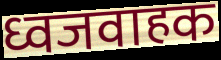
ध्वजवाहक